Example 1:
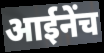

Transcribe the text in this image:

आईनेंच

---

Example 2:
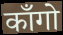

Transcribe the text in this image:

काँगो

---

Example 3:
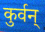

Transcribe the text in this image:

कुर्वन्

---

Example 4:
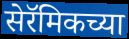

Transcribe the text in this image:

सेरॅमिकच्या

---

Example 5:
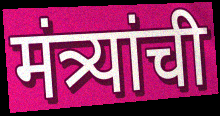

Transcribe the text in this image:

मंत्र्यांची